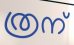
ത്രന്